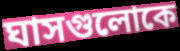
ঘাসগুলোকে